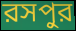
রসপুর